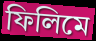
ফিলিমে